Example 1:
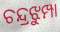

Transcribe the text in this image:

ଚନ୍ଦ୍ରଝୁମ୍ପା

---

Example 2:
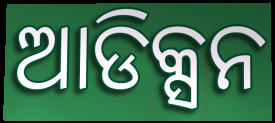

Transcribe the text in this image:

ଆଡିକ୍ସନ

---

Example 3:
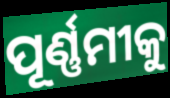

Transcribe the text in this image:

ପୂର୍ଣ୍ଣମୀକୁ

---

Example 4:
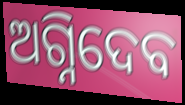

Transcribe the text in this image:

ଅଗ୍ନିଦେବ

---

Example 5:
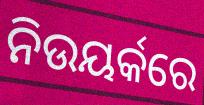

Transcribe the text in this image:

ନିଉୟର୍କରେ